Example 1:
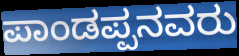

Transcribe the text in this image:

ಪಾಂಡಪ್ಪನವರು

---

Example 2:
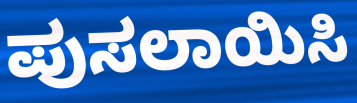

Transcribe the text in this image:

ಪುಸಲಾಯಿಸಿ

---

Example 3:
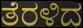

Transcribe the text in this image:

ತೆರಳಿದ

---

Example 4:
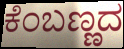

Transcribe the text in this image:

ಕೆಂಬಣ್ಣದ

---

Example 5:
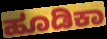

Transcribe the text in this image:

ಹೂಡಿಕಾ